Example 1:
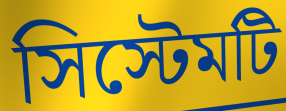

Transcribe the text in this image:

সিস্টেমটি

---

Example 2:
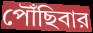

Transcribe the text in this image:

পৌঁছিবার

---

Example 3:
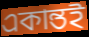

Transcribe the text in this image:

একান্তই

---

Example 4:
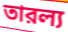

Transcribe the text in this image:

তারল্য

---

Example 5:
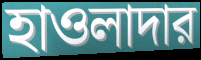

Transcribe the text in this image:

হাওলাদার